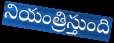
నియంత్రిస్తుంది